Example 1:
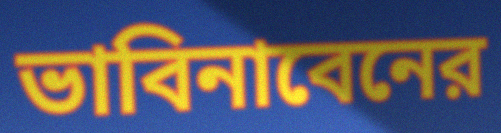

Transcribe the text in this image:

ভাবিনাবেনের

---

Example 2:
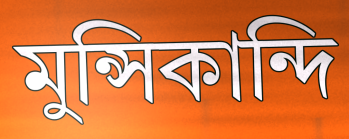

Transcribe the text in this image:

মুন্সিকান্দি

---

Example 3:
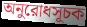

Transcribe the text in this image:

অনুরোধসূচক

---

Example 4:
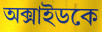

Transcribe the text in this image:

অক্সাইডকে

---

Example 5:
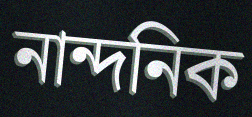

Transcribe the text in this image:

নান্দনিক